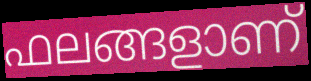
ഫലങ്ങളാണ്